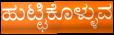
ಹುಟ್ಟಿಕೊಳ್ಳುವ